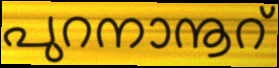
പുറനാനൂറ്